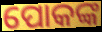
ପୋକଙ୍କ